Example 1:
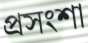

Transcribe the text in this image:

প্ৰসংশা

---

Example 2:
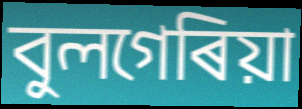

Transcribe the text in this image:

বুলগেৰিয়া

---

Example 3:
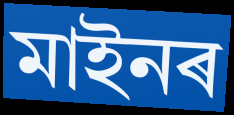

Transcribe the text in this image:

মাইনৰ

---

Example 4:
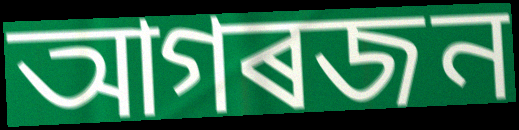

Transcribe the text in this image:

আগৰজন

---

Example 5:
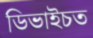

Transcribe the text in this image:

ডিভাইচত